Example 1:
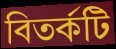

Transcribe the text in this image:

বিতর্কটি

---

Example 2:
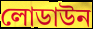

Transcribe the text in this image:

লোডাউন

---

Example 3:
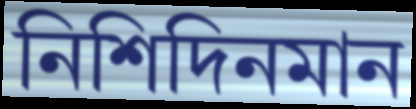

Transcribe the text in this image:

নিশিদিনমান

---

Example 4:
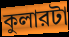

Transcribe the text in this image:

কুলারটা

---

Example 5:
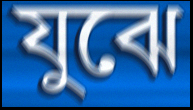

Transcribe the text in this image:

যুঝে